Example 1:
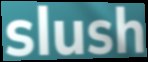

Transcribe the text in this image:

slush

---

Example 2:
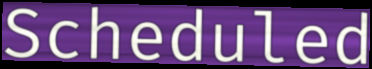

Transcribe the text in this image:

Scheduled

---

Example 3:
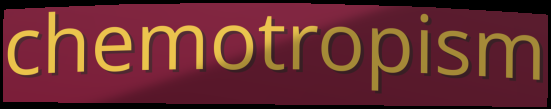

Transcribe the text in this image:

chemotropism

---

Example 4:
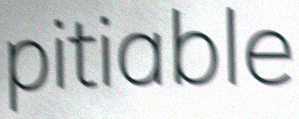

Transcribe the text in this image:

pitiable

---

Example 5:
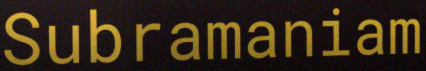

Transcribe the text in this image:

Subramaniam